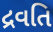
દ્રવતિ